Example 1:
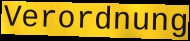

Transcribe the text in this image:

Verordnung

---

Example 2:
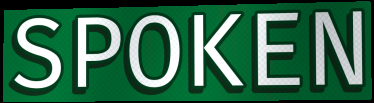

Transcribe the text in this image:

SPOKEN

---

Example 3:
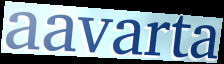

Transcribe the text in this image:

aavarta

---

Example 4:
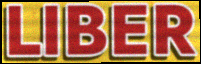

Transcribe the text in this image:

LIBER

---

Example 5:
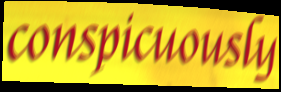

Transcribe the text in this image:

conspicuously